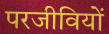
परजीवियों